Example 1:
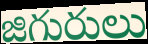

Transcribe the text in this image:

జిగురులు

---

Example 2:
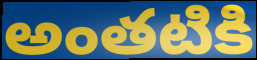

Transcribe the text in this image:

అంతటికి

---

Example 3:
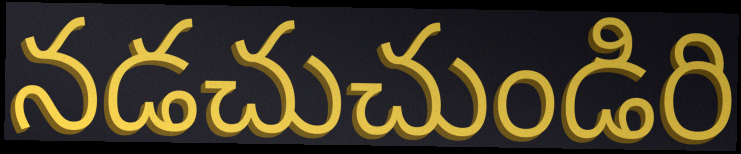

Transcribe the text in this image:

నడచుచుండిరి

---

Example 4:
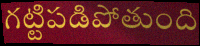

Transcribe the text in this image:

గట్టిపడిపోతుంది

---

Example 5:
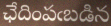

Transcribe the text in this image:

ఛేదింపఁబడిన